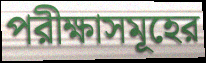
পরীক্ষাসমূহের